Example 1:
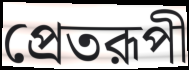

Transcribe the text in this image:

প্রেতরূপী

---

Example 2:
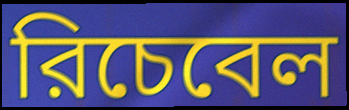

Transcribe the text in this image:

রিচেবেল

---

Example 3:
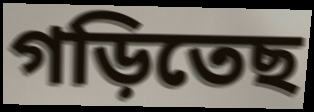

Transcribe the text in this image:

গড়িতেছ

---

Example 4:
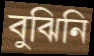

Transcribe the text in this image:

বুঝিনি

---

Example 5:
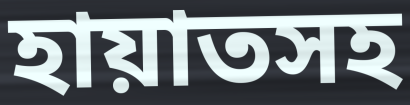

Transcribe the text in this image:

হায়াতসহ